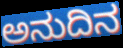
ಅನುದಿನ